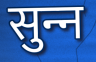
सुन्‍न